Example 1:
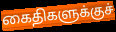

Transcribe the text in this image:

கைதிகளுக்குச்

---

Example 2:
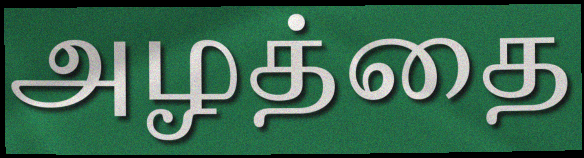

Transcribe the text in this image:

அழத்தை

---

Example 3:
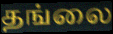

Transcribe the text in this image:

தங்லை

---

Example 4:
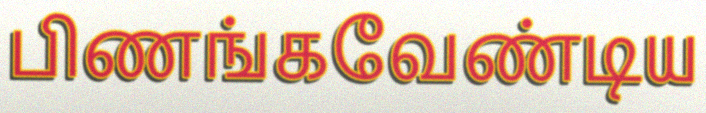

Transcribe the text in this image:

பிணங்கவேண்டிய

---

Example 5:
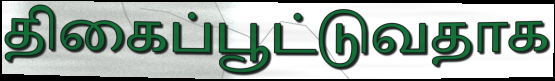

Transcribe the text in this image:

திகைப்பூட்டுவதாக